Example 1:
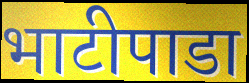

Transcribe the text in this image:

भाटीपाडा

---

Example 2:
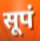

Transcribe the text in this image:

सूपं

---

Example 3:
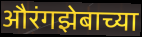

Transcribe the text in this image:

औरंगझेबाच्या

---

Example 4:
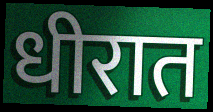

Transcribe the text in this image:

धीरात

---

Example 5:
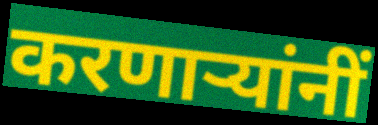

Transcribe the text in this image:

करणार्‍यांनीं